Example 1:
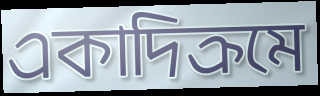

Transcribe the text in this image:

একাদিক্ৰমে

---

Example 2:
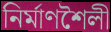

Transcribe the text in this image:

নিৰ্মাণশৈলী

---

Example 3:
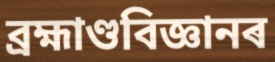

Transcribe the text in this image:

ব্ৰহ্মাণ্ডবিজ্ঞানৰ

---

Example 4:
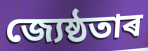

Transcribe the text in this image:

জ্যেষ্ঠতাৰ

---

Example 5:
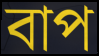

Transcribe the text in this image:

বাপ